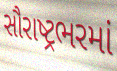
સૌરાષ્ટ્રભરમાં